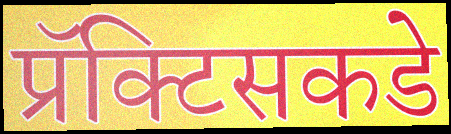
प्रॅक्टिसकडे